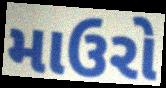
માઉરો